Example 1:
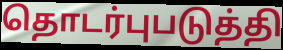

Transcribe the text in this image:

தொடர்புபடுத்தி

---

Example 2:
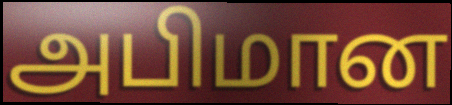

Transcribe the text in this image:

அபிமான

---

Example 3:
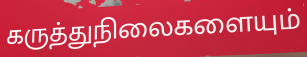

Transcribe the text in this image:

கருத்துநிலைகளையும்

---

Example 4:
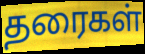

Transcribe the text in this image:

தரைகள்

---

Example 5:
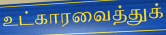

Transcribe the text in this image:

உட்காரவைத்துக்